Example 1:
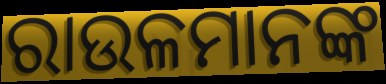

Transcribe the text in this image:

ରାଉଳମାନଙ୍କ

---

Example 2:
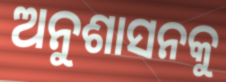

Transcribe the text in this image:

ଅନୁଶାସନକୁ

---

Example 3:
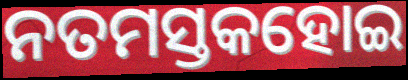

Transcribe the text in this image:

ନତମସ୍ତକହୋଇ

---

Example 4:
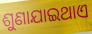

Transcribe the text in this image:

ଶୁଣାଯାଇଥାଏ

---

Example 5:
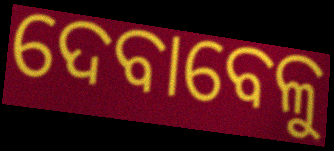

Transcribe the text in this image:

ଦେବାବେଳୁ